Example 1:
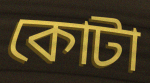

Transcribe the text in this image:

কোটা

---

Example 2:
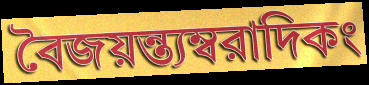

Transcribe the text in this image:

বৈজয়ন্ত্যম্বরাদিকং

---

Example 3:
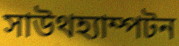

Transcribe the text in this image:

সাউথহ্যাম্পটন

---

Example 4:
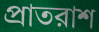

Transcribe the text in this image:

প্রাতরাশ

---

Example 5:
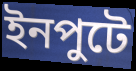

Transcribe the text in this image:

ইনপুটে